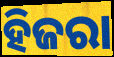
ହିଜରା